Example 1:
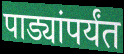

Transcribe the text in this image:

पाड्यांपर्यंत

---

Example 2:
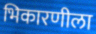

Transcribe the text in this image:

भिकारणीला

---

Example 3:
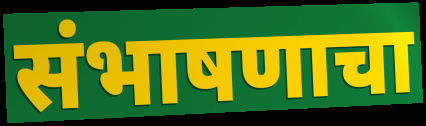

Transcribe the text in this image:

संभाषणाचा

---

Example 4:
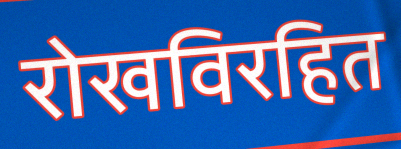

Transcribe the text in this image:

रोखविरहित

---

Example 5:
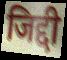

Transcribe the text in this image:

जिद्दी